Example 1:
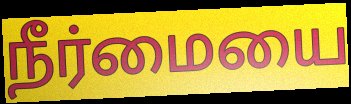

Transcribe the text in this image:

நீர்மையை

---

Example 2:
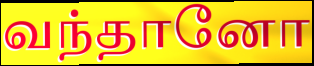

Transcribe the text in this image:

வந்தானோ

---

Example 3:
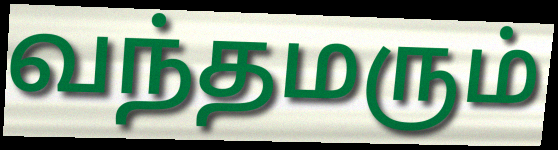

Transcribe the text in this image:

வந்தமரும்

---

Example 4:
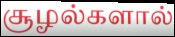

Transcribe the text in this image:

சூழல்களால்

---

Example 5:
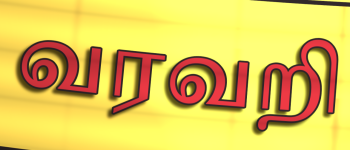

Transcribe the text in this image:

வரவறி